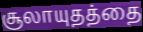
சூலாயுதத்தை